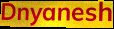
Dnyanesh